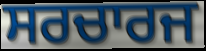
ਸਰਚਾਰਜ